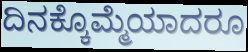
ದಿನಕ್ಕೊಮ್ಮೆಯಾದರೂ